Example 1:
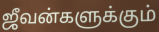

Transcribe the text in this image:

ஜீவன்களுக்கும்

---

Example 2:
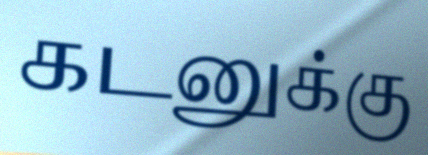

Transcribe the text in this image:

கடனுக்கு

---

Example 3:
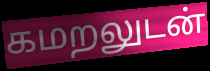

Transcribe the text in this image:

கமறலுடன்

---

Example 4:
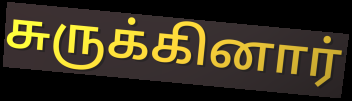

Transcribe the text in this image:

சுருக்கினார்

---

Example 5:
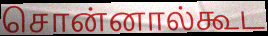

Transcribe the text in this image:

சொன்னால்கூட